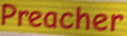
Preacher